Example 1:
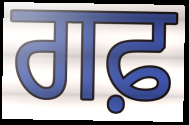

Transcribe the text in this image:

ਗਫ਼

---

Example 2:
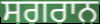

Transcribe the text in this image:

ਸਗਰਾਨ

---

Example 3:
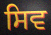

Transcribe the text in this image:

ਸਿਵ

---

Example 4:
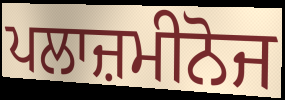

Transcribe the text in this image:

ਪਲਾਜ਼ਮੀਨੋਜ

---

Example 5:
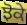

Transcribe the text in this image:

ਝੋਕੇ